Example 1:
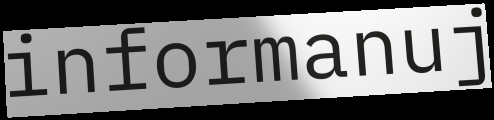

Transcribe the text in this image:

informanuj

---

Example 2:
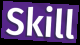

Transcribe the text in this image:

Skill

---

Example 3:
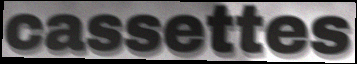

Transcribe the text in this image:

cassettes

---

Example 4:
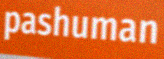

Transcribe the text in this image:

pashuman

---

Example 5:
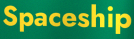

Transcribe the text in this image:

Spaceship